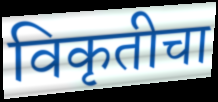
विकृतीचा